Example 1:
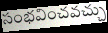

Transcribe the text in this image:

సంభవించవచ్చు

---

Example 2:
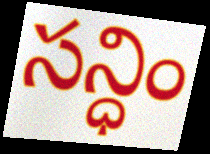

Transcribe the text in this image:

సన్ధిం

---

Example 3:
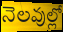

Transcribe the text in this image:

నెలవుల్లో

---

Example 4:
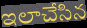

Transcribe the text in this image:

ఇలాచేసిన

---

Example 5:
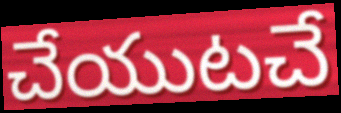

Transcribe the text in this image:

చేయుటచే